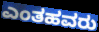
ಎಂತಹವರು